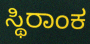
ಸ್ಥಿರಾಂಕ